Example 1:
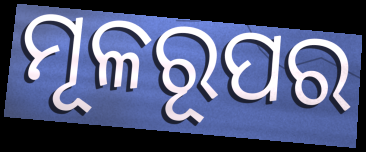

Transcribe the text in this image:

ମୂଳରୂପର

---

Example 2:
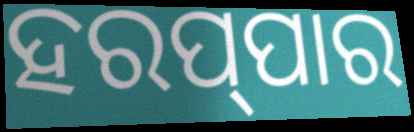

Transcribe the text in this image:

ହରପ୍‌ପାର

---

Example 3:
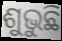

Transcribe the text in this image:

ଶୁଭୁଛି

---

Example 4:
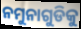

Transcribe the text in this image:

ନମୁନାଗୁଡିକୁ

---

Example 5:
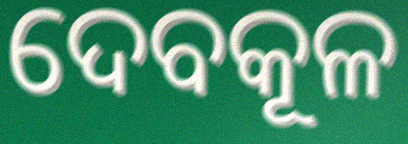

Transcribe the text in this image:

ଦେବକୂଳ